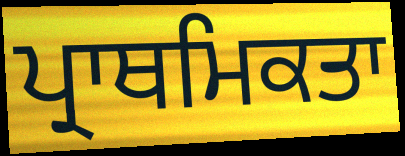
ਪ੍ਰਾਥਮਿਕਤਾ